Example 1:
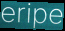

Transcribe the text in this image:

eripe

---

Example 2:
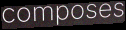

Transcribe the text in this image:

composes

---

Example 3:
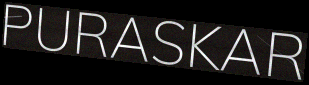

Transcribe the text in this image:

PURASKAR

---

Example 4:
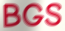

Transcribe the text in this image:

BGS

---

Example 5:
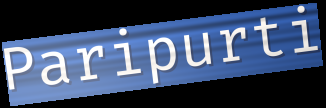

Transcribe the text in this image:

Paripurti